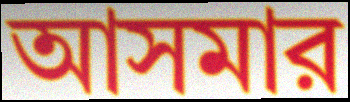
আসমার